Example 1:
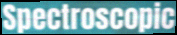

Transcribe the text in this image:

Spectroscopic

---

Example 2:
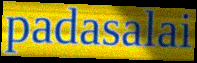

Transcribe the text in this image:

padasalai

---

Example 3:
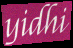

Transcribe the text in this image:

yidhi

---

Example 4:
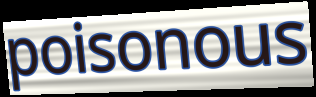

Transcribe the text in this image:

poisonous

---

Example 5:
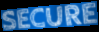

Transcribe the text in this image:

SECURE